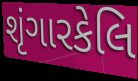
શૃંગારકેલિ